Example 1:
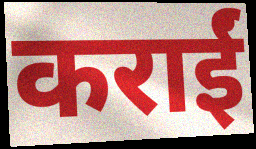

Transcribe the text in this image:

कराईं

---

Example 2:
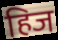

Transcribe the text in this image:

हिज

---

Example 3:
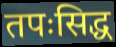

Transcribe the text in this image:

तपःसिद्ध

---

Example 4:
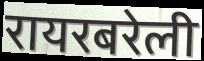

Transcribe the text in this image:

रायरबरेली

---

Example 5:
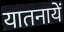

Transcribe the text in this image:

यातनायें